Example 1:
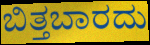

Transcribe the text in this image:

ಬಿತ್ತಬಾರದು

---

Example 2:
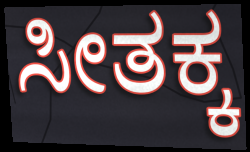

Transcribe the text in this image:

ಸೀತಕ್ಕ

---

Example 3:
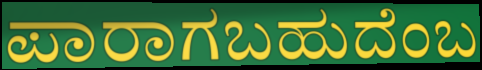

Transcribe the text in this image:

ಪಾರಾಗಬಹುದೆಂಬ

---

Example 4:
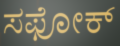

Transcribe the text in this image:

ಸಫೋಕ್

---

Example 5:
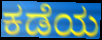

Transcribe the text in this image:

ಕಡೆಯ